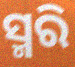
ସ୍ମରି